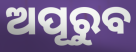
ଅପୂରୁବ